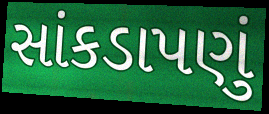
સાંકડાપણું